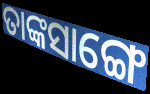
ତାଙ୍କସାଙ୍ଗେ